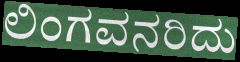
ಲಿಂಗವನರಿದು